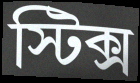
স্টিক্স